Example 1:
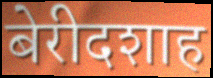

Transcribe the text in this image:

बेरीदशाह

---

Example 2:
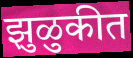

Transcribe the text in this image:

झुळुकीत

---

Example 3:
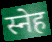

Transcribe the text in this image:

स्नेह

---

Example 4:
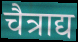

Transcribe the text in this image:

चैत्राद्य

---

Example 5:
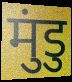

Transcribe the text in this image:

मुंडु